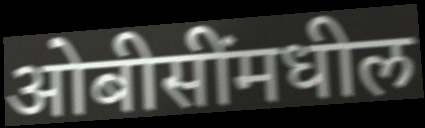
ओबीसींमधील